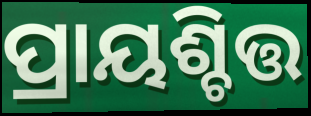
ପ୍ରାୟଶ୍ଚିତ୍ତ